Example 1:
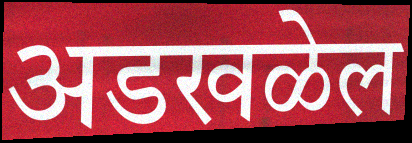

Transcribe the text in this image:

अडखळेल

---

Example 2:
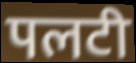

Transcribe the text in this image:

पलटी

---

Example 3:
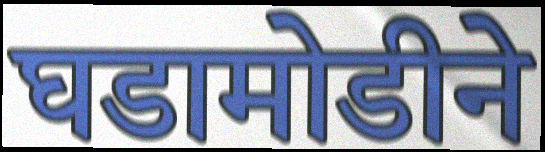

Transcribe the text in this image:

घडामोडीने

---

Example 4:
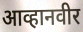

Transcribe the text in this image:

आव्हानवीर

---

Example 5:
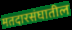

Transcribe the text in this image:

मतदारसंघातील